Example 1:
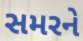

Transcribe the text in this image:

સમરને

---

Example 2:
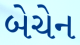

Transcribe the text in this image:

બેચેન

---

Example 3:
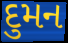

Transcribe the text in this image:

દુમન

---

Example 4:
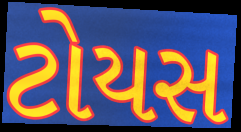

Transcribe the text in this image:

ટોયસ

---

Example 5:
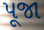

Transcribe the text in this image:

પૂજા